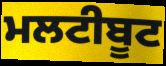
ਮਲਟੀਬੂਟ